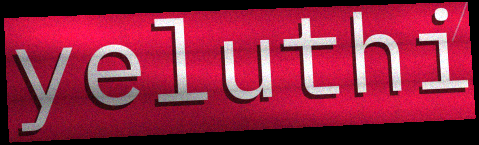
yeluthi